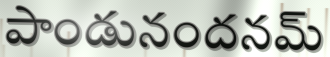
పాండునందనమ్